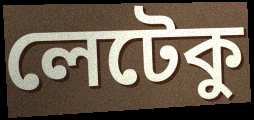
লেটেকু